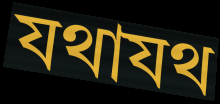
যথাযথ